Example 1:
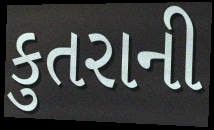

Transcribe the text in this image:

કુતરાની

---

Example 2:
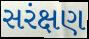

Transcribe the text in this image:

સરંક્ષણ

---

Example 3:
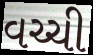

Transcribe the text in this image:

વચ્ચી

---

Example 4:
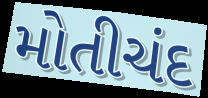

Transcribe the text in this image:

મોતીચંદ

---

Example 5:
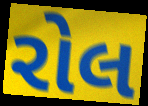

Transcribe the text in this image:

રોલ